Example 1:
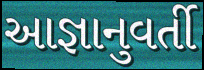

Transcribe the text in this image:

આજ્ઞાનુવર્તી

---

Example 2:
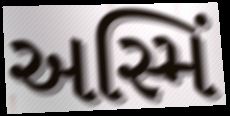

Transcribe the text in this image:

અસ્મિં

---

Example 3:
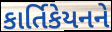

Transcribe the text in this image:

કાર્તિકેયનને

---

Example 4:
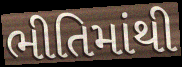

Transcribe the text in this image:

ભીતિમાંથી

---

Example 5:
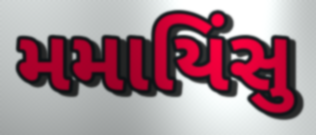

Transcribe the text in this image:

મમાયિંસુ